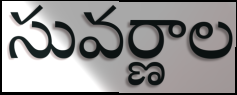
సువర్ణాల